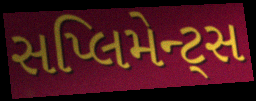
સપ્લિમેન્ટ્સ